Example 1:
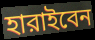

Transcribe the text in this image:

হারাইবেন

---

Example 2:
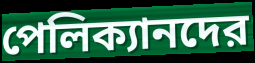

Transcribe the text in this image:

পেলিক্যানদের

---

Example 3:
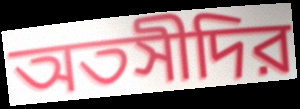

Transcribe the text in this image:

অতসীদির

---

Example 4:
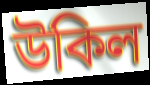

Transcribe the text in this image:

উকিল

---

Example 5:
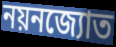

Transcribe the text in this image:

নয়নজ্যোত